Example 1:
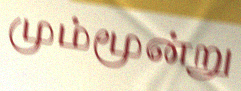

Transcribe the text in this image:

மும்மூன்று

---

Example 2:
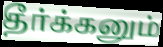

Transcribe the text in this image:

தீர்க்கனும்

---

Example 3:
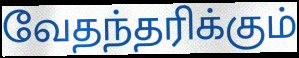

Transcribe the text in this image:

வேதந்தரிக்கும்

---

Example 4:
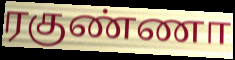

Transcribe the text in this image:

ரகுண்ணா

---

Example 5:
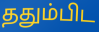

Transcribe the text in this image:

ததும்பிட